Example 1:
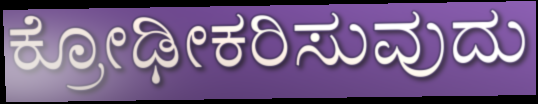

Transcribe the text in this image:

ಕ್ರೋಢೀಕರಿಸುವುದು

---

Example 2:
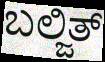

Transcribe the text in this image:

ಬಲ್ಜಿತ್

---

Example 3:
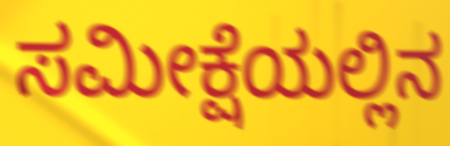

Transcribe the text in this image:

ಸಮೀಕ್ಷೆಯಲ್ಲಿನ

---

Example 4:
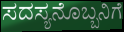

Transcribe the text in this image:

ಸದಸ್ಯನೊಬ್ಬನಿಗೆ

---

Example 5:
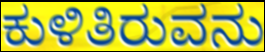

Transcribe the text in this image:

ಕುಳಿತಿರುವನು